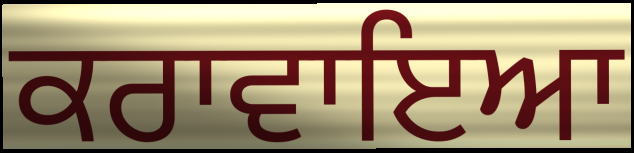
ਕਰਾਵਾਇਆ